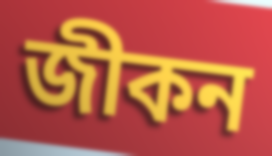
জীকন